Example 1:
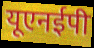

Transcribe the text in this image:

यूएनईपी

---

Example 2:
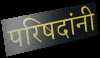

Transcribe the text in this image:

परिषदांनी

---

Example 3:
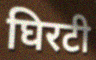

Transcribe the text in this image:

घिरटी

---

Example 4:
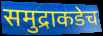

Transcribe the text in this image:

समुद्राकडेच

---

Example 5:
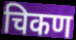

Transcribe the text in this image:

चिकण